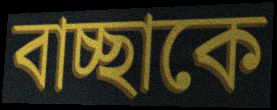
বাচ্ছাকে